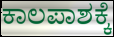
ಕಾಲಪಾಶಕ್ಕೆ